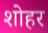
शोहर